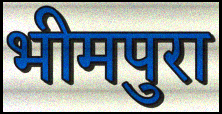
भीमपुरा